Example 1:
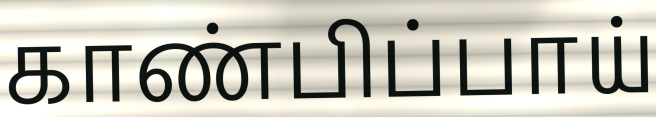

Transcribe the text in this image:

காண்பிப்பாய்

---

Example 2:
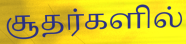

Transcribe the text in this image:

சூதர்களில்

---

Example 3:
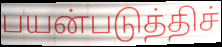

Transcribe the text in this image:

பயன்படுத்திச்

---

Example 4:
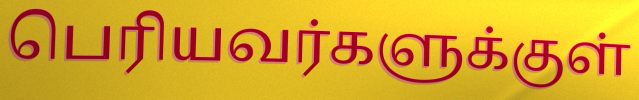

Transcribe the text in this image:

பெரியவர்களுக்குள்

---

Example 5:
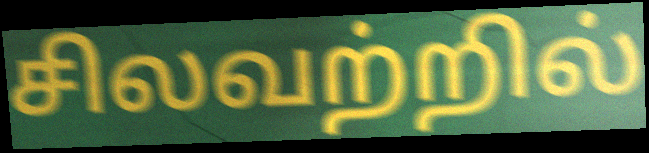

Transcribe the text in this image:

சிலவற்றில்